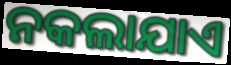
ନକଲାଯାଏ